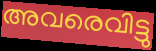
അവരെവിട്ടു